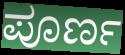
ಪೂರ್ಣ